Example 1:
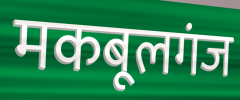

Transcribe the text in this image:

मकबूलगंज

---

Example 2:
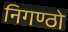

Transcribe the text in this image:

निगण्ठो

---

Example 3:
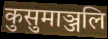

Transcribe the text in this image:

कुसुमाञ्जलि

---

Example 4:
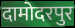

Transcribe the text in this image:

दामोदरपुर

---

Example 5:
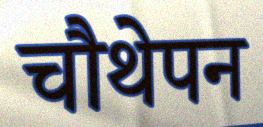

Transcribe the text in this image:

चौथेपन